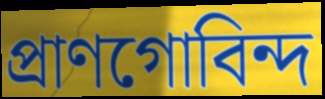
প্রাণগোবিন্দ